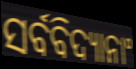
ସର୍ବବିଦ୍ୟାନାଂ